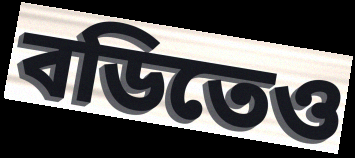
বডিতেও